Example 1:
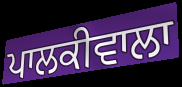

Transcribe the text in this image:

ਪਾਲਕੀਵਾਲਾ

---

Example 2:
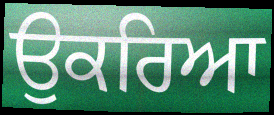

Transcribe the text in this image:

ਉਕਰਿਆ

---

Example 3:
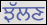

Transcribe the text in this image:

ਝੱਲਣ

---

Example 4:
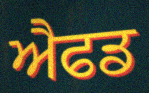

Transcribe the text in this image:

ਐਫਡ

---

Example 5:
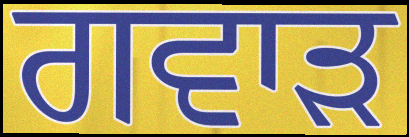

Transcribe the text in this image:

ਗਵਾੜ